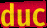
duc